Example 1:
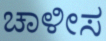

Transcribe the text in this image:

ಚಾಳೀಸ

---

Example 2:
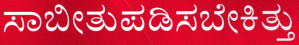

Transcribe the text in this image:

ಸಾಬೀತುಪಡಿಸಬೇಕಿತ್ತು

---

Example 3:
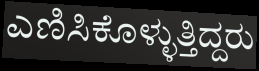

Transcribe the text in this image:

ಎಣಿಸಿಕೊಳ್ಳುತ್ತಿದ್ದರು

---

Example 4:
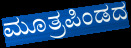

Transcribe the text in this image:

ಮೂತ್ರಪಿಂಡದ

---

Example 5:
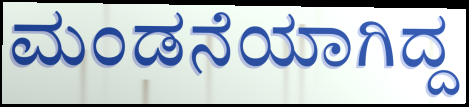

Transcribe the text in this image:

ಮಂಡನೆಯಾಗಿದ್ದ